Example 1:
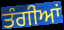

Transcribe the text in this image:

ਤੰਗੀਆਂ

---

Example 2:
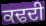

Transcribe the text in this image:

ਕਢਦੀ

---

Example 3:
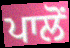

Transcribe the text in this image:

ਪਾਲੋਂ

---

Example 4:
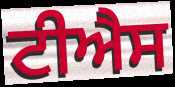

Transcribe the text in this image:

ਟੀਐਸ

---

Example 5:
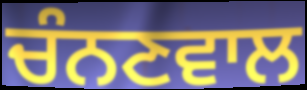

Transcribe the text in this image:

ਚੰਨਣਵਾਲ